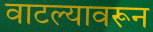
वाटल्यावरून